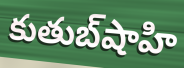
కుతుబ్‌షాహి